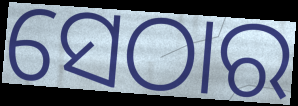
ସେଠାର